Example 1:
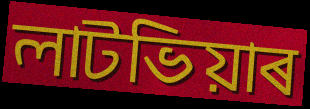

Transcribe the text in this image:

লাটভিয়াৰ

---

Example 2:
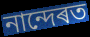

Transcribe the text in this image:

নান্দেৰত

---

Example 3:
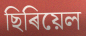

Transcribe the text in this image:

ছিৰিয়েল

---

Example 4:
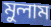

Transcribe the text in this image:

মুলাম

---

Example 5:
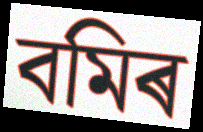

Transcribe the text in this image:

বমিৰ